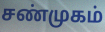
சண்முகம்